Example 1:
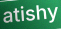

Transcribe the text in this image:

atishy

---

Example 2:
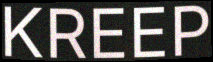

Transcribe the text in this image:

KREEP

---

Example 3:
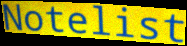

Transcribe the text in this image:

Notelist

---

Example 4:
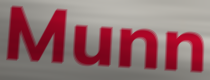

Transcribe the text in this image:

Munn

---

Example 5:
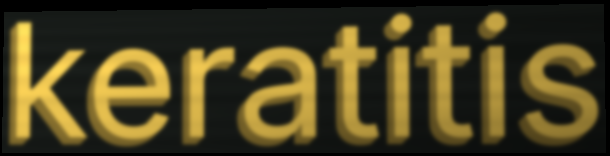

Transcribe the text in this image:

keratitis